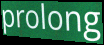
prolong